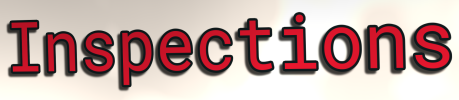
Inspections